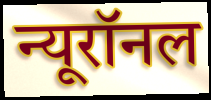
न्यूरॉनल